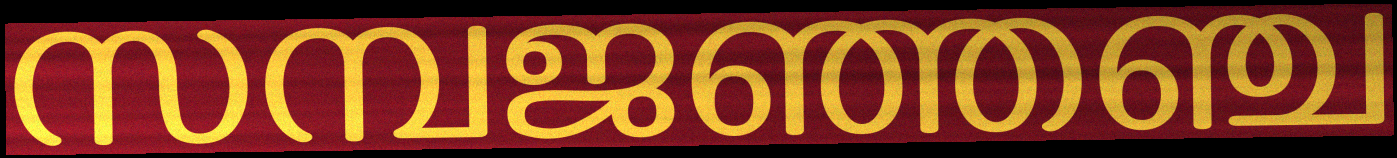
സമ്പജഞ്ഞഞ്ച